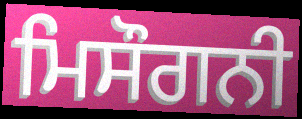
ਮਿਸੌਗਨੀ